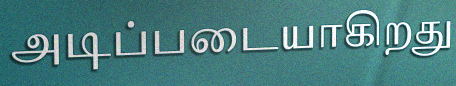
அடிப்படையாகிறது